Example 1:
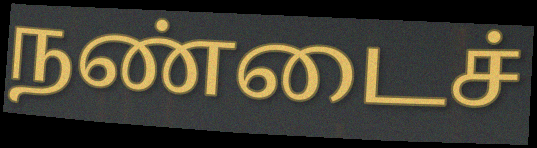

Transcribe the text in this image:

நண்டைச்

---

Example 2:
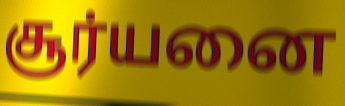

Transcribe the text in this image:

சூர்யனை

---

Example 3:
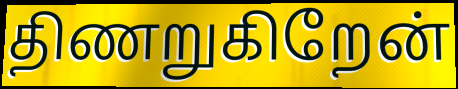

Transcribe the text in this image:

திணறுகிறேன்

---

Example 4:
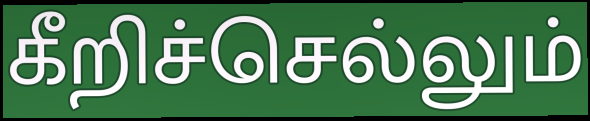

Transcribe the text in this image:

கீறிச்செல்லும்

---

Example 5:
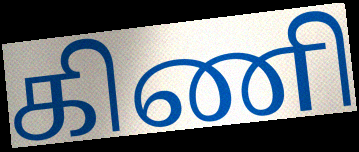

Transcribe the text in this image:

கிணி